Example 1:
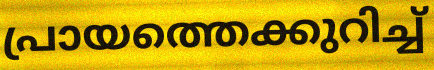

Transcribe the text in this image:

പ്രായത്തെക്കുറിച്ച്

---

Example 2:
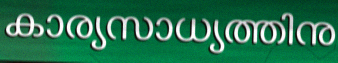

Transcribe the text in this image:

കാര്യസാധ്യത്തിനു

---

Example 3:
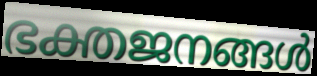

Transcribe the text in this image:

ഭക്തജനങ്ങൾ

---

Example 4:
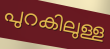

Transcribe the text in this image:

പുറകിലുള്ള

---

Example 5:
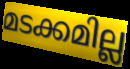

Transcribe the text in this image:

മടക്കമില്ല